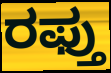
ರಫ್ತು